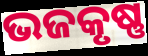
ଭଜକୃଷ୍ଣ